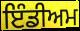
ਇੰਡੀਅਮ